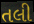
તલી